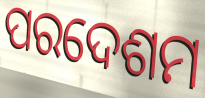
ପରଦେଶମ